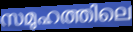
സമുഹത്തിലെ